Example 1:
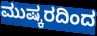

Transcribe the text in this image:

ಮುಷ್ಕರದಿಂದ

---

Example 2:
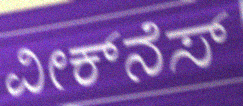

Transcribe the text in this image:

ವೀಕ್‌ನೆಸ್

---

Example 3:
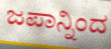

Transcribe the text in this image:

ಜಪಾನ್ನಿಂದ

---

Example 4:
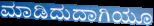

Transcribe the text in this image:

ಮಾಡಿದುದಾಗಿಯೂ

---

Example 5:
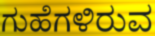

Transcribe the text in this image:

ಗುಹೆಗಳಿರುವ